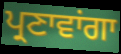
ਪ੍ਰਣਾਵਾਂਗਾ